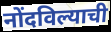
नोंदविल्याची